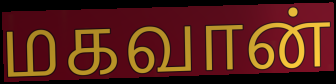
மகவான்